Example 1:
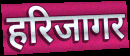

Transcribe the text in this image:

हरिजागर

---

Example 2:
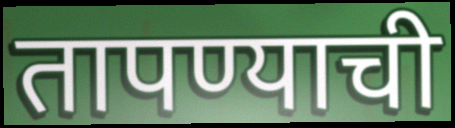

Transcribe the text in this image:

तापण्याची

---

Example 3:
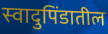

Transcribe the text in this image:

स्वादुपिंडातील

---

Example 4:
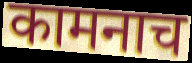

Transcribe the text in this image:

कामनाच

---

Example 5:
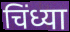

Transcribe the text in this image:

चिंध्या